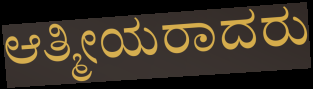
ಆತ್ಮೀಯರಾದರು